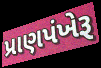
પ્રાણપંખેરૂ